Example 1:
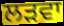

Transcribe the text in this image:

ਲੜਵਾ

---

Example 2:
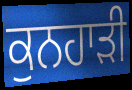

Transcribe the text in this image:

ਕੁਨਹਾੜੀ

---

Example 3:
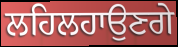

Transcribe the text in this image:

ਲਹਿਲਹਾਉਣਗੇ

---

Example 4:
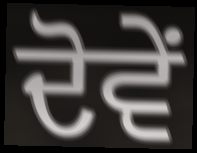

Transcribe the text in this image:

ਦੋਵੇੰ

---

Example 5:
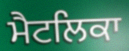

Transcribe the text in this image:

ਮੈਟਲਿਕਾ